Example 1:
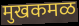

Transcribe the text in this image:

मुखकमळ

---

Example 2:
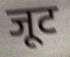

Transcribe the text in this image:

जूट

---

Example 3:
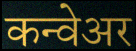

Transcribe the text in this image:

कन्वेअर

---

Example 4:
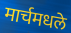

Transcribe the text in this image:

मार्चमधले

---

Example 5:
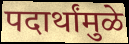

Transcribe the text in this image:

पदार्थांमुळे